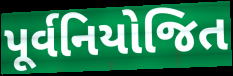
પૂર્વનિયોજિત